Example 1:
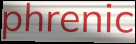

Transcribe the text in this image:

phrenic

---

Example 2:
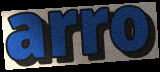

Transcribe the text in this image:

arro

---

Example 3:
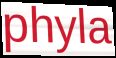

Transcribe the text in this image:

phyla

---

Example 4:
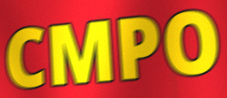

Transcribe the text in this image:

CMPO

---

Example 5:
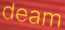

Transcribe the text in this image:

deam